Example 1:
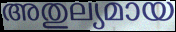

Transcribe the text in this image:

അതുല്യമായ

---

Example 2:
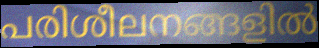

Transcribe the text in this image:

പരിശീലനങ്ങളിൽ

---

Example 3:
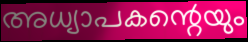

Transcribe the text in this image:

അധ്യാപകന്റെയും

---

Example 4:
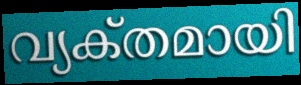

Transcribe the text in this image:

വ്യക്‌തമായി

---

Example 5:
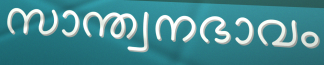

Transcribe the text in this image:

സാന്ത്വനഭാവം